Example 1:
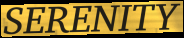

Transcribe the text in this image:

SERENITY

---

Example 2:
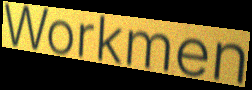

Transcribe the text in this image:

Workmen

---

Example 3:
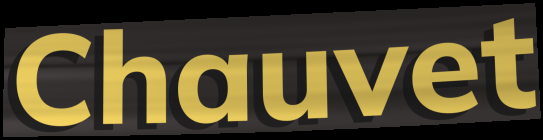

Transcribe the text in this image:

Chauvet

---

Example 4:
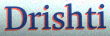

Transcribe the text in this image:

Drishti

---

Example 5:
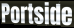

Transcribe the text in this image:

Portside